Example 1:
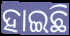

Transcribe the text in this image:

ହାଇଛି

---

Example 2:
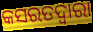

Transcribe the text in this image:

କସରତଦ୍ୱାରା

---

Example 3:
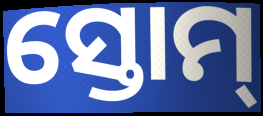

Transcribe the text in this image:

ସ୍ତୋମ୍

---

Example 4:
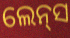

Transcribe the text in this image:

ଲେନ୍‍ସ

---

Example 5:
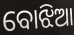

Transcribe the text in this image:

ବୋଝିଆ